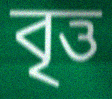
বৃত্ত